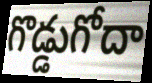
గొడ్డుగోదా